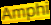
Amphi